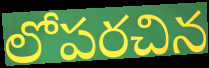
లోపరచిన